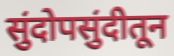
सुंदोपसुंदीतून